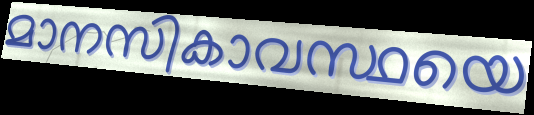
മാനസികാവസ്ഥയെ